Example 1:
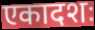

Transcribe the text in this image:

एकादशः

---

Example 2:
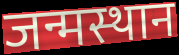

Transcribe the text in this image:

जन्मस्थान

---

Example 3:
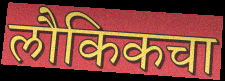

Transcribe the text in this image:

लौकिकचा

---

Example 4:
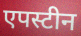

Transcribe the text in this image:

एपस्टीन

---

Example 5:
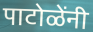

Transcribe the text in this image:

पाटोळेंनी